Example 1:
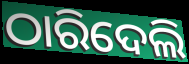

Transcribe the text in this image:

ଠାରିଦେଲି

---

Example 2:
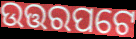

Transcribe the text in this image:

ଉତ୍ତରପଟେ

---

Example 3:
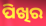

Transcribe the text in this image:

ପିଖିର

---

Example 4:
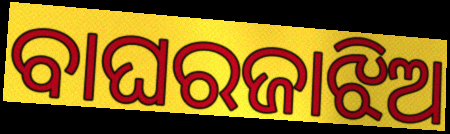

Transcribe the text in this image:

ବାଘରଜାଝିଅ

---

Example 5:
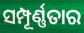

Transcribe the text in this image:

ସମ୍ପୂର୍ଣ୍ଣତାର